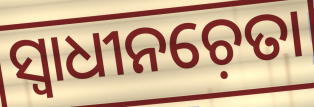
ସ୍ୱାଧୀନଚ଼େତା